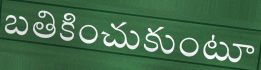
బతికించుకుంటూ